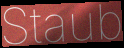
Staub